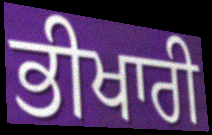
ਭੀਖਾਰੀ